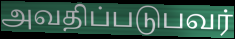
அவதிப்படுபவர்